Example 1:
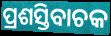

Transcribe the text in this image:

ପ୍ରଶସ୍ତିବାଚକ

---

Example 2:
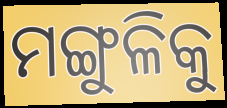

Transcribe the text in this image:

ମଙ୍ଗୁଳିକୁ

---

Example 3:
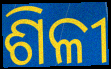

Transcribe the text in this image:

ଶିଳୀ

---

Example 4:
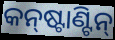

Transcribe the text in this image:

କନ୍‌ଷ୍ଟାଣ୍ଟିନ୍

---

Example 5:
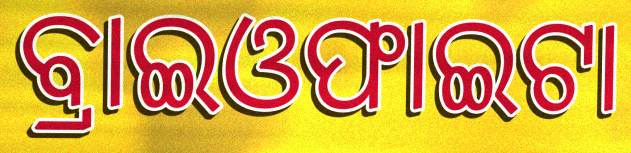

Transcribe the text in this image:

ବ୍ରାଇଓଫାଇଟା